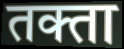
तक्ता